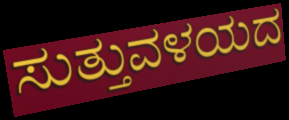
ಸುತ್ತುವಳಯದ